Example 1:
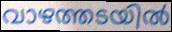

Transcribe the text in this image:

വാഴത്തടയിൽ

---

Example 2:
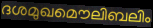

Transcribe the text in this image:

ദശമുഖമൌലിബലിം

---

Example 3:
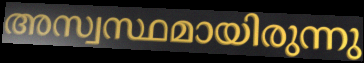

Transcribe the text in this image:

അസ്വസ്ഥമായിരുന്നു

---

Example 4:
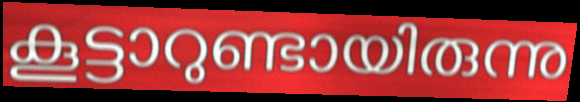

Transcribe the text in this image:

കൂട്ടാറുണ്ടായിരുന്നു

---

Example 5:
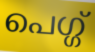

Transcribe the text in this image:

പെഗ്ഗ്